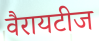
वैरायटीज